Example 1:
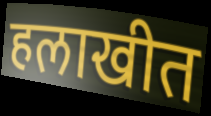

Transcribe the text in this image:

हलाखीत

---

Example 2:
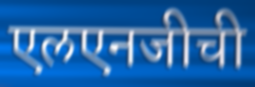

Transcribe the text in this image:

एलएनजीची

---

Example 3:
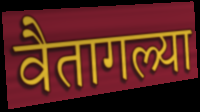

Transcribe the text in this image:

वैतागल्या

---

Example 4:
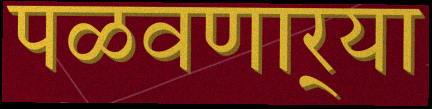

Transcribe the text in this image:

पळवणार्या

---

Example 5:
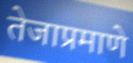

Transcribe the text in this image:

तेजाप्रमाणे